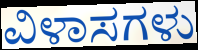
ವಿಳಾಸಗಳು